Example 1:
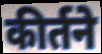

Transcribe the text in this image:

कीर्तने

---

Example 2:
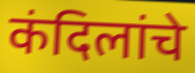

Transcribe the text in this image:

कंदिलांचे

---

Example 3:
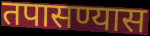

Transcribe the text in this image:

तपासण्यास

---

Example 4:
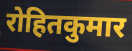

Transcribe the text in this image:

रोहितकुमार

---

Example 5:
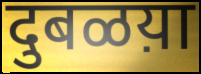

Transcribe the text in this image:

दुबळय़ा